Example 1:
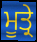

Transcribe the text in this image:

ਮੂਤ੍ਰੇ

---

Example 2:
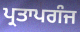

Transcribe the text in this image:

ਪ੍ਰਤਾਪਗੰਜ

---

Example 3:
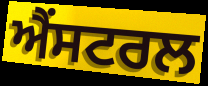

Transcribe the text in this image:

ਐਂਸਟਰਲ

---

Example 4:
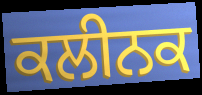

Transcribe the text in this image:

ਕਲੀਨਕ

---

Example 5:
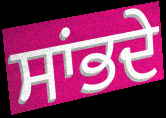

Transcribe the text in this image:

ਸਾਂਭਦੇ